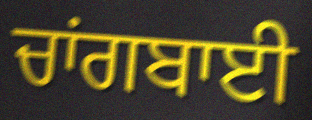
ਚਾਂਗਬਾਈ